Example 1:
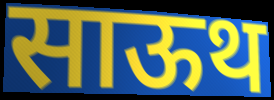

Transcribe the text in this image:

साऊथ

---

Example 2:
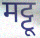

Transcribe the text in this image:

मट्टू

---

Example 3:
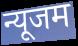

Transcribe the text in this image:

न्यूजम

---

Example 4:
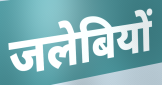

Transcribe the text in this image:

जलेबियों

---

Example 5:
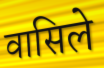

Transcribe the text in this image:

वासिले